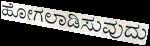
ಹೋಗಲಾಡಿಸುವುದು